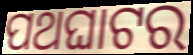
ପଥଘାଟର